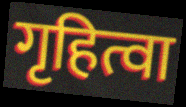
गृहित्वा